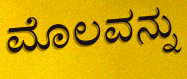
ಮೊಲವನ್ನು